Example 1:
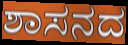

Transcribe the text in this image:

ಶಾಸನದ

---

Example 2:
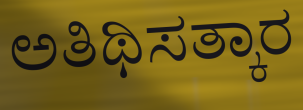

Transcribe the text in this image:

ಅತಿಥಿಸತ್ಕಾರ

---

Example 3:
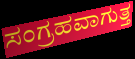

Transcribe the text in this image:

ಸಂಗ್ರಹವಾಗುತ್ತ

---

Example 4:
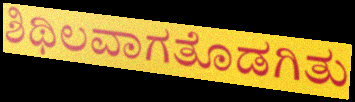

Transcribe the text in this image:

ಶಿಥಿಲವಾಗತೊಡಗಿತು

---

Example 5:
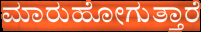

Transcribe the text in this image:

ಮಾರುಹೋಗುತ್ತಾರೆ